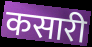
कसारी